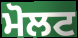
ਮੋਲਟ